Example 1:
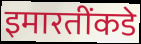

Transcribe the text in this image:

इमारतींकडे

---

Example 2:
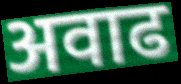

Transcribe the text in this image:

अवाढ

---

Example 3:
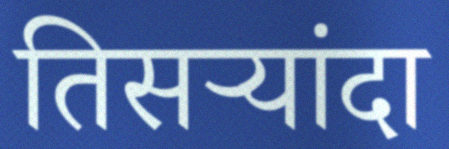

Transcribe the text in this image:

तिसऱ्यांदा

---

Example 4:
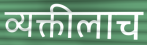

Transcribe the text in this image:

व्यक्तीलाच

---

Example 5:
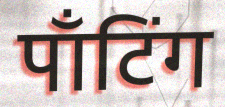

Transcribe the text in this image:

पाँटिंग